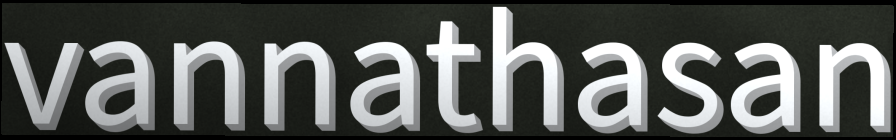
vannathasan